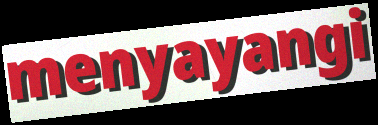
menyayangi